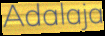
Adalaja